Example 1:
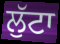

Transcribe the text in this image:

ਲੁੱਟਾ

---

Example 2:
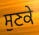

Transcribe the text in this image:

ਸੁਣਕੇ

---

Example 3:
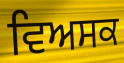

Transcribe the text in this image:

ਵਿਅਸਕ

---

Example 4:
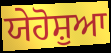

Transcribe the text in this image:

ਯੇਹੋਸ਼ੁਆ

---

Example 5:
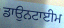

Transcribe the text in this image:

ਡਾਉਨਟਾਈਮ